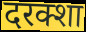
दरक्शा